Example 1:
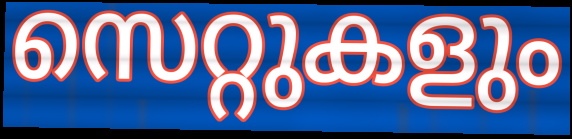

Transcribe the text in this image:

സെറ്റുകളും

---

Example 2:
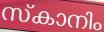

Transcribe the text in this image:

സ്‌കാനിം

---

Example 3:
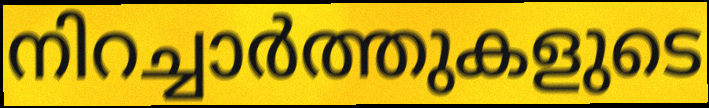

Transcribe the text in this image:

നിറച്ചാർത്തുകളുടെ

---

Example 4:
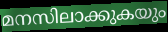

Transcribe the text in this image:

മനസിലാക്കുകയും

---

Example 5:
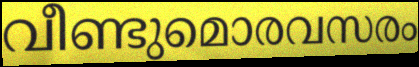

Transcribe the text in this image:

വീണ്ടുമൊരവസരം